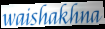
waishakhna